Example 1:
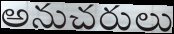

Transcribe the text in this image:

అనుచరులు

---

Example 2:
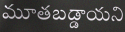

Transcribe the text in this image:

మూతబడ్డాయని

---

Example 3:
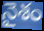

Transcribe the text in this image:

నైశం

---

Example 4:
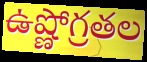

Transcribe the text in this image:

ఉష్ణోగ్రతల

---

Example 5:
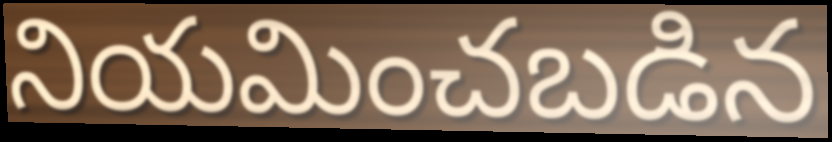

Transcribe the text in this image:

నియమించబడిన